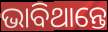
ଭାବିଥାନ୍ତେ